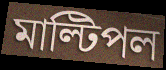
মাল্টিপল